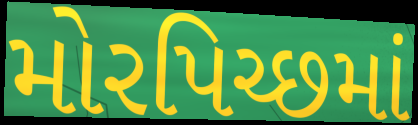
મોરપિચ્છમાં